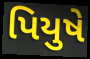
પિયુષે